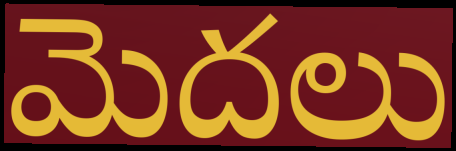
మెదలు